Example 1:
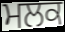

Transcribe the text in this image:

ਮਲਕ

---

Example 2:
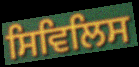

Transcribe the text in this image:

ਸਿਵਿਲਿਸ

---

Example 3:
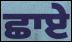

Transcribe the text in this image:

ਛਾਏ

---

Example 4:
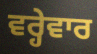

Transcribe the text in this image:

ਵਰ੍ਹੇਵਾਰ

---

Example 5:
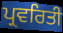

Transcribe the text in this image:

ਪ੍ਰਵਰਿਤੀ